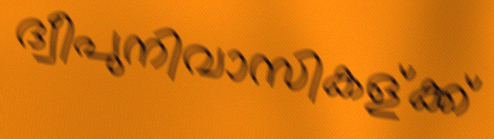
ദ്വീപുനിവാസികള്ക്ക്